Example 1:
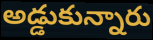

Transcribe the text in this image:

అడ్డుకున్నారు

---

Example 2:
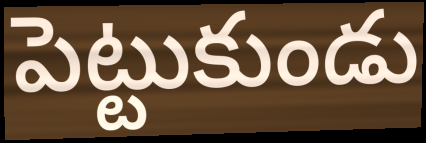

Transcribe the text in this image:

పెట్టుకుండు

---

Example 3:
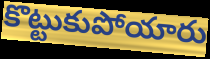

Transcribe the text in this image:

కొట్టుకుపోయారు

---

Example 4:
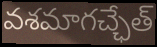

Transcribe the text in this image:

వశమాగచ్ఛేత్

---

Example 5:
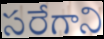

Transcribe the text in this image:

సరేగాని